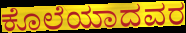
ಕೊಲೆಯಾದವರ